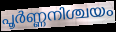
പൂർണ്ണനിശ്ചയം